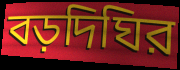
বড়দিঘির